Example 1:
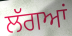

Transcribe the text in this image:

ਲੱਗਆਂ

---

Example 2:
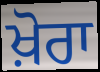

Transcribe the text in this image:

ਖ਼ੋਰਾ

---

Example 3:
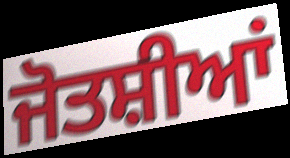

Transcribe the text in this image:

ਜੋਤਸ਼ੀਆਂ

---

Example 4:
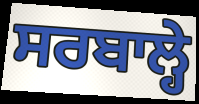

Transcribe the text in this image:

ਸਰਬਾਲ੍ਹੇ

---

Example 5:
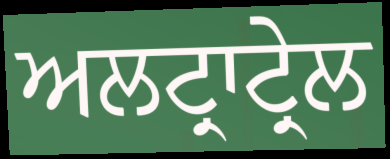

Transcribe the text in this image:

ਅਲਟ੍ਰਾਟ੍ਰੇਲ